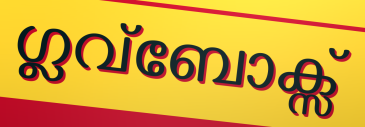
ഗ്ലവ്ബോക്സ്